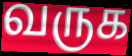
வருக